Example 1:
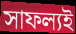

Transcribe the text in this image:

সাফল্যই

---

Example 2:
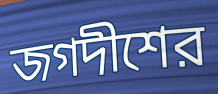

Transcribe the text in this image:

জগদীশের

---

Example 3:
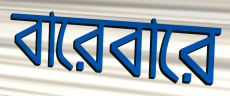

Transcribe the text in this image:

বারেবারে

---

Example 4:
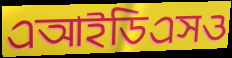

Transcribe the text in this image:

এআইডিএসও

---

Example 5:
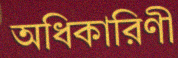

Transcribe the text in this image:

অধিকারিণী